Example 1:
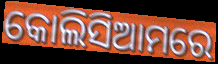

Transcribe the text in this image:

କୋଲିସିଆମରେ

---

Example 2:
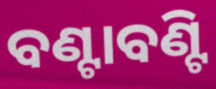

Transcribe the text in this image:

ବଣ୍ଟାବଣ୍ଟି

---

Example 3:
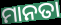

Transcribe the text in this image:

ମାନତା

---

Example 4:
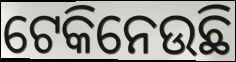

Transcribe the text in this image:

ଟେକିନେଉଛି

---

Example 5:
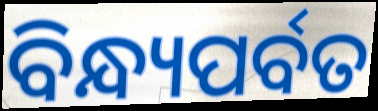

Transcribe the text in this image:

ବିନ୍ଧ୍ୟପର୍ବତ